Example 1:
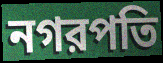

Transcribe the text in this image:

নগরপতি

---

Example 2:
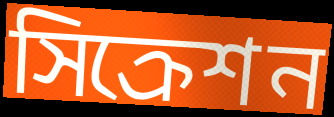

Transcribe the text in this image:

সিক্রেশন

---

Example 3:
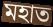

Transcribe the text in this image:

মহাত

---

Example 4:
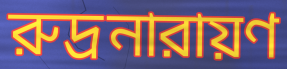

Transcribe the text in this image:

রুদ্রনারায়ণ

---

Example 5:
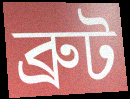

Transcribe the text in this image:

ব্রুট